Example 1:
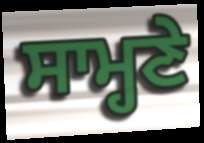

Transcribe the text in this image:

ਸਾਮ੍ਹਣੇ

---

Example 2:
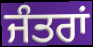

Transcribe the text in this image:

ਜੰਤਰਾਂ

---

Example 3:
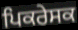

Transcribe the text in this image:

ਪਿਕਰੇਸਕ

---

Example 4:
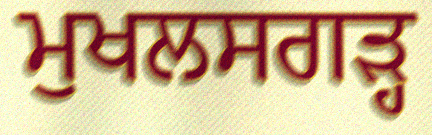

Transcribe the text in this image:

ਮੁਖਲਸਗੜ੍ਹ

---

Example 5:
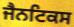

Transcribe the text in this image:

ਜੈਨਟਿਕਸ